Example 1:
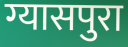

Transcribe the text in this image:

ग्यासपुरा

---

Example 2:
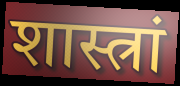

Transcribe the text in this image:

शास्त्रां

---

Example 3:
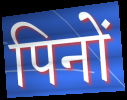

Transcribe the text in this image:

पिनों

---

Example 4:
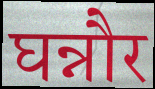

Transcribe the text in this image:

घन्नौर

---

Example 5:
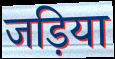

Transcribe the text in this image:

जड़िया